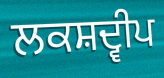
ਲਕਸ਼ਦ੍ਵੀਪ